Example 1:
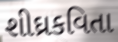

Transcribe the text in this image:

શીઘ્રકવિતા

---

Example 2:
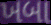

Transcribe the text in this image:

ખબા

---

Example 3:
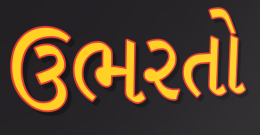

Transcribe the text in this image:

ઉભરતો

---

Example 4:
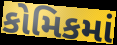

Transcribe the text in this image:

કોમિકમાં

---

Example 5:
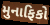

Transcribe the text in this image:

મુનાફિકો